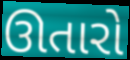
ઊતારો